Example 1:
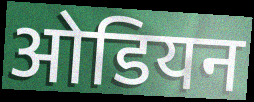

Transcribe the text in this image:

ओडियन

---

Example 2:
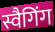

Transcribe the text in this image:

स्वैगिंग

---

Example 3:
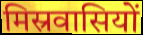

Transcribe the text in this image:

मिस्रवासियों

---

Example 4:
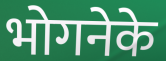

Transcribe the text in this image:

भोगनेके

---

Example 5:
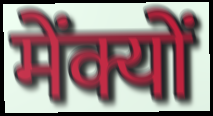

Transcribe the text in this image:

मेंक्यों